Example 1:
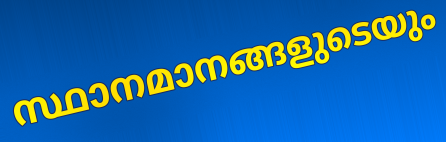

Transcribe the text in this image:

സ്ഥാനമാനങ്ങളുടെയും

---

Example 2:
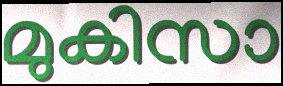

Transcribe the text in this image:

മുകിസാ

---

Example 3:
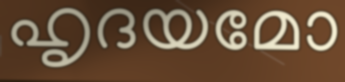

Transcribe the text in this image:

ഹൃദയമോ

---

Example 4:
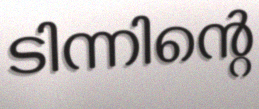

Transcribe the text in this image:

ടിന്നിന്റെ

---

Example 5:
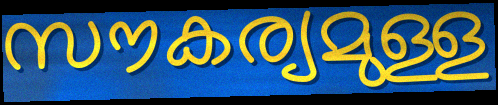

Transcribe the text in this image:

സൗകര്യമുള്ള